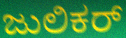
ಜುಲಿಕರ್